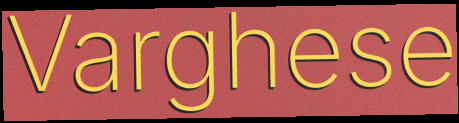
Varghese